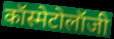
कॉस्मेटोलॉजी